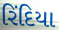
રિંદિયા